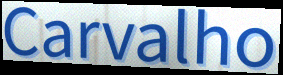
Carvalho